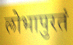
लोभापुरतं